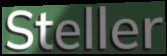
Steller